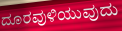
ದೂರವುಳಿಯುವುದು